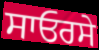
ਸਾਓਰਸੇ